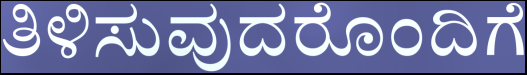
ತಿಳಿಸುವುದರೊಂದಿಗೆ